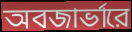
অবজার্ভারে